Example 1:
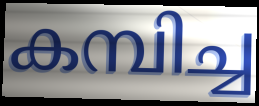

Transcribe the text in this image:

കമ്പിച്ച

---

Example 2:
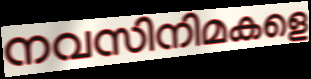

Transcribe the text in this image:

നവസിനിമകളെ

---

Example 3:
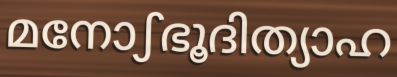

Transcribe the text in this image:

മനോഽഭൂദിത്യാഹ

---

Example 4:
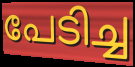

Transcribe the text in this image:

പേടിച്ച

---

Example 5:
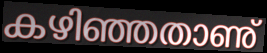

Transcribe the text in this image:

കഴിഞ്ഞതാണു്